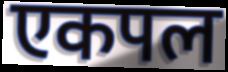
एकपल